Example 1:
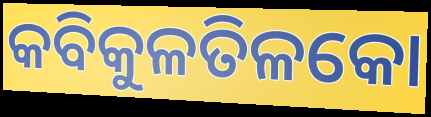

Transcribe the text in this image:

କବିକୁଳତିଳକୋ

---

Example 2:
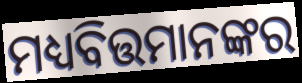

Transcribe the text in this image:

ମଧ୍ୟବିତ୍ତମାନଙ୍କର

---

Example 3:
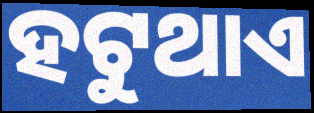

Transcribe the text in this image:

ହଟୁଥାଏ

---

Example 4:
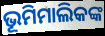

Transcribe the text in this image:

ଭୂମିମାଲିକଙ୍କ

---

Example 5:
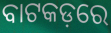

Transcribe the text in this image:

ବାଟକଡ଼ରେ